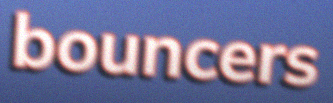
bouncers